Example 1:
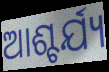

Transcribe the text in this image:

ଆଶ୍ଚର୍ଯ୍ୟ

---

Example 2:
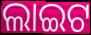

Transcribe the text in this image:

ଲାଇଟ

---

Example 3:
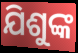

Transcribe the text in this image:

ଯିଶୁଙ୍କ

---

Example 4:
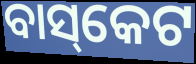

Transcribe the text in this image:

ବାସ୍‌କେଟ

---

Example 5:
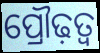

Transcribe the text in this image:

ପ୍ରୌଢ଼ତ୍ୱ